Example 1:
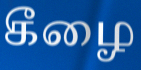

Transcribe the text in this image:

கீழை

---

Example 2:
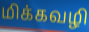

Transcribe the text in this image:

மிக்கவழி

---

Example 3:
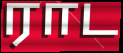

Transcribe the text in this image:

ராட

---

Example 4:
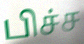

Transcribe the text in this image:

பிச்ச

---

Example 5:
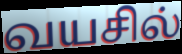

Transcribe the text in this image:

வயசில்